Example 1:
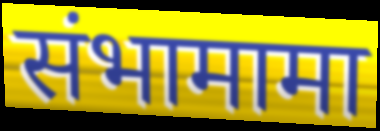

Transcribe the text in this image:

संभामामा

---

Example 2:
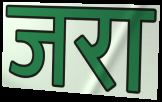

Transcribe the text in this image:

जरा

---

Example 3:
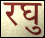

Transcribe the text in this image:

रघु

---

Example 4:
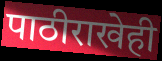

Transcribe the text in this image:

पाठीराखेही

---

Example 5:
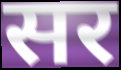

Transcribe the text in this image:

सर